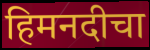
हिमनदीचा